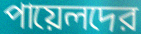
পায়েলদের